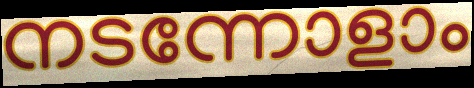
നടന്നോളാം